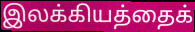
இலக்கியத்தைக்